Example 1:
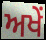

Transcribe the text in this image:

ਅਖੇਂ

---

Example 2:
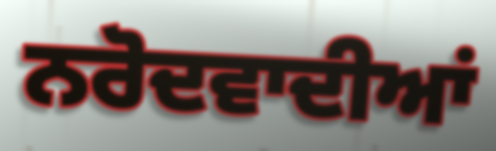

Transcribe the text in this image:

ਨਰੋਦਵਾਦੀਆਂ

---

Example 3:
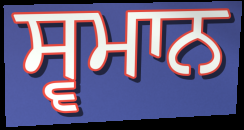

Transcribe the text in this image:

ਸ੍ਵਮਾਨ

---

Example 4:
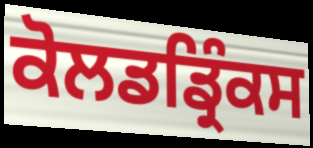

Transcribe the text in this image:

ਕੋਲਡਡ੍ਰਿੰਕਸ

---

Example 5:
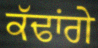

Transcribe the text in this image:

ਕੱਢਾਂਗੇ